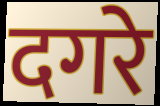
दगरे